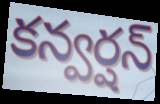
కన్వర్షన్